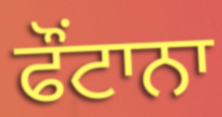
ਫੌਂਟਾਨਾ